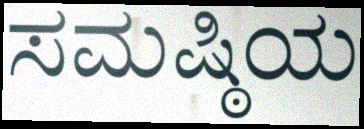
ಸಮಷ್ಠಿಯ